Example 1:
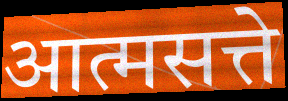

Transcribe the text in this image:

आत्मसत्ते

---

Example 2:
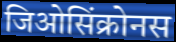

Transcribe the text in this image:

जिओसिंक्रोनस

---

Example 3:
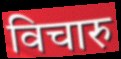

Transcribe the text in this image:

विचारु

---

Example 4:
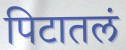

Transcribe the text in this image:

पिटातलं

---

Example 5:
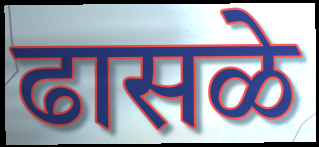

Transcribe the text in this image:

ढासळे